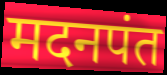
मदनपंत